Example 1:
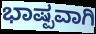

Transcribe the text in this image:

ಭಾಷ್ಪವಾಗಿ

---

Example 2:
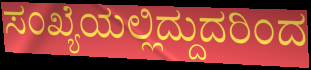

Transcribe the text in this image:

ಸಂಖ್ಯೆಯಲ್ಲಿದ್ದುದರಿಂದ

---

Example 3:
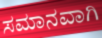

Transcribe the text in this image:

ಸಮಾನವಾಗಿ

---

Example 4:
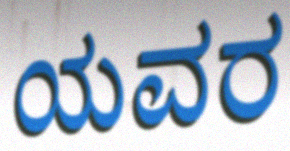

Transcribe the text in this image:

ಯವರ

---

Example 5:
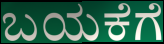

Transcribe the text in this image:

ಬಯಕೆಗೆ